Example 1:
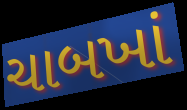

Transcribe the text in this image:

ચાબખાં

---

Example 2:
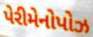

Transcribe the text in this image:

પેરીમેનોપોઝ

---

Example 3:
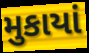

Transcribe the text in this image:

મુકાયાં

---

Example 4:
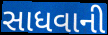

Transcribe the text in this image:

સાધવાની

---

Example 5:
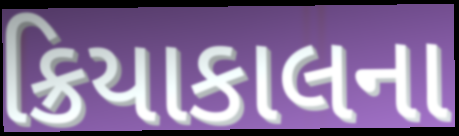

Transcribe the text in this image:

ક્રિયાકાલના